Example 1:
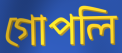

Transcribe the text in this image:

গোপলি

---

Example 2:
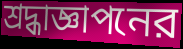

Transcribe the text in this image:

শ্রদ্ধাজ্ঞাপনের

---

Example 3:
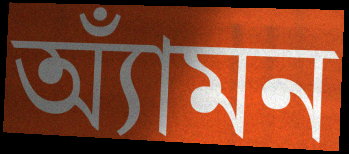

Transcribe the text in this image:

অ্যাঁমন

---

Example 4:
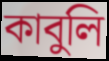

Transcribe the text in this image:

কাবুলি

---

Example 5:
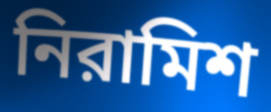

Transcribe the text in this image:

নিরামিশ